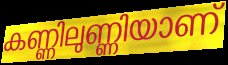
കണ്ണിലുണ്ണിയാണ്